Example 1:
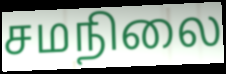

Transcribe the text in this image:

சமநிலை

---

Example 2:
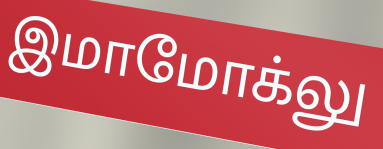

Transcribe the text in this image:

இமாமோக்லு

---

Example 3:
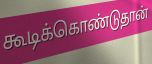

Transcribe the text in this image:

கூடிக்கொண்டுதான்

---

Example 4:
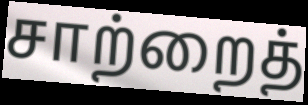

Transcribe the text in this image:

சாற்றைத்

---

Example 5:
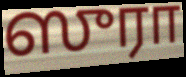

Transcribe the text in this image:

ஸுரா